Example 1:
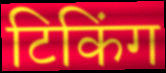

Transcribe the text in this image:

टिकिंग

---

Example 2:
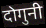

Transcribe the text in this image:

दोगुनी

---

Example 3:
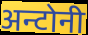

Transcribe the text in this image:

अन्टोनी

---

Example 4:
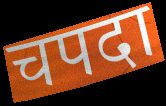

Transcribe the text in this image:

चपदा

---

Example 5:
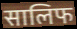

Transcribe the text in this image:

सालिफ